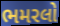
ભમરલો